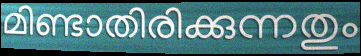
മിണ്ടാതിരിക്കുന്നതും